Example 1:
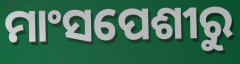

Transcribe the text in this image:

ମାଂସପେଶୀରୁ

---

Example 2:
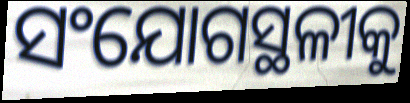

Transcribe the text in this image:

ସଂଯୋଗସ୍ଥଳୀକୁ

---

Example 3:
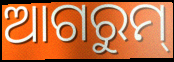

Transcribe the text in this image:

ଆଗରୁମ୍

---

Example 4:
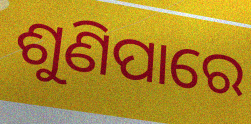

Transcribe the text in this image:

ଶୁଣିପାରେ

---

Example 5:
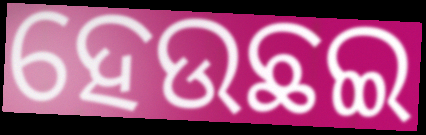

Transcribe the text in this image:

ହେଉଛଇ